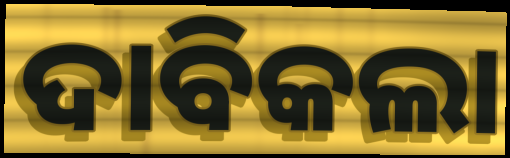
ଦାବିକଲା